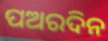
ପଅରଦିନ